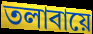
তলাবায়ে